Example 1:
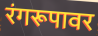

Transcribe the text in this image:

रंगरूपावर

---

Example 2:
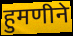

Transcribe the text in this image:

हुमणीने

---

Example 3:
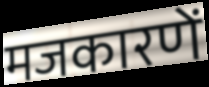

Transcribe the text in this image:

मजकारणें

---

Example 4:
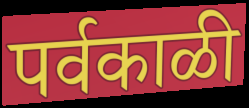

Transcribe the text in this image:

पर्वकाळी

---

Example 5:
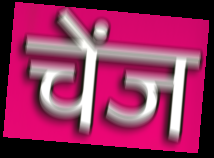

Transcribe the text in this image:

चेंज